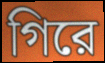
গিরে